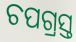
ଚପଗ୍ରସ୍ତ